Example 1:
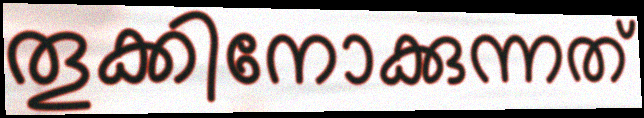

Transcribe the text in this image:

തൂക്കിനോക്കുന്നത്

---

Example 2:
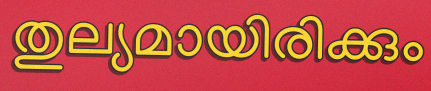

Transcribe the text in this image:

തുല്യമായിരിക്കും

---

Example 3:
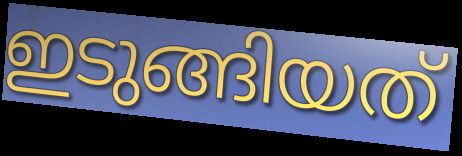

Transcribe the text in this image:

ഇടുങ്ങിയത്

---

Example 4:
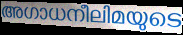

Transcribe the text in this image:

അഗാധനീലിമയുടെ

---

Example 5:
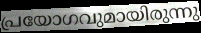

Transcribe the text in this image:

പ്രയോഗവുമായിരുന്നു